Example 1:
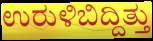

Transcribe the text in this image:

ಉರುಳಿಬಿದ್ದಿತ್ತು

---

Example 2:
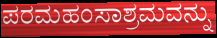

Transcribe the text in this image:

ಪರಮಹಂಸಾಶ್ರಮವನ್ನು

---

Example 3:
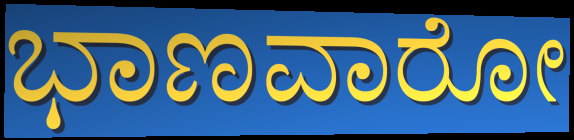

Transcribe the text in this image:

ಭಾಣವಾರೋ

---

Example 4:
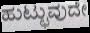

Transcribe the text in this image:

ಹುಟ್ಟುವುದೇ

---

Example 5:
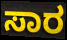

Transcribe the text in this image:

ಸಾರ